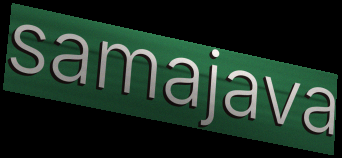
samajava